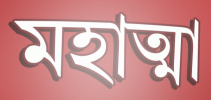
মহাত্মা